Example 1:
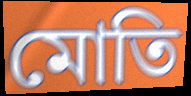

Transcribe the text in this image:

মোতি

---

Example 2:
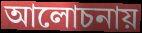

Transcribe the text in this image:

আলোচনায়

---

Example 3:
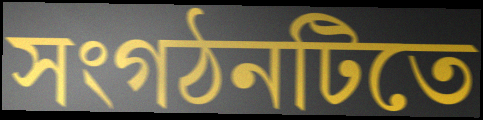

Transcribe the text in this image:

সংগঠনটিতে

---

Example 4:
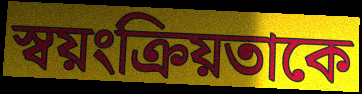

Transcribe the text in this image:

স্বয়ংক্রিয়তাকে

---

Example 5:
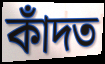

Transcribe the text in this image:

কাঁদত